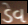
ડેવ